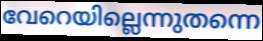
വേറെയില്ലെന്നുതന്നെ